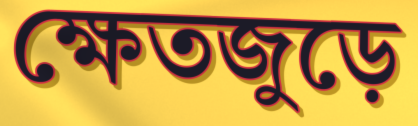
ক্ষেতজুড়ে